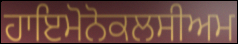
ਹਾਇਮੋਨੋਕਲਸੀਅਮ